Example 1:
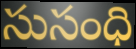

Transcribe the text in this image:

సుసంధి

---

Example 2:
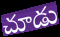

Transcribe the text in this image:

చూడు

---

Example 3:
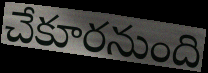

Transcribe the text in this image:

చేకూరనుంది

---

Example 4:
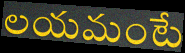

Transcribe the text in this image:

లయమంటే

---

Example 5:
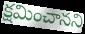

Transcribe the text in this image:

క్షమించానని